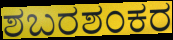
ಶಬರಶಂಕರ